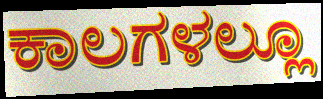
ಕಾಲಗಳಲ್ಲೂ